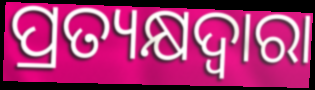
ପ୍ରତ୍ୟକ୍ଷଦ୍ବାରା